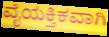
ವೈಯಕ್ತಿಕವಾಗಿ